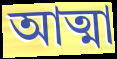
আত্মা